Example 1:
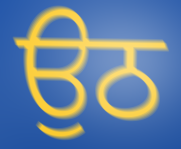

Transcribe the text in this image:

ਉਠ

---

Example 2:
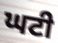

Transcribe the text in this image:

ਘਟੀ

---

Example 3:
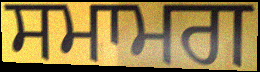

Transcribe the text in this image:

ਸਮਾਮਗ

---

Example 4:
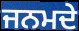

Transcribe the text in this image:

ਜਨਮਦੇ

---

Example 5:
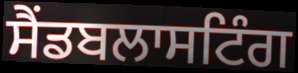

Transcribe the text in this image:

ਸੈਂਡਬਲਾਸਟਿੰਗ